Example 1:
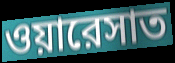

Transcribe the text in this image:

ওয়ারেসাত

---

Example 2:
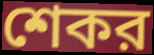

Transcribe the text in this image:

শেকর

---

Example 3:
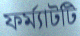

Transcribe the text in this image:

ফর্ম্যাটটি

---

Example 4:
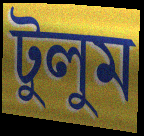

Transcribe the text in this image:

টুলুম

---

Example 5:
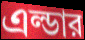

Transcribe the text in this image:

এল্ডার